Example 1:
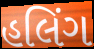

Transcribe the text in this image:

હલિંગ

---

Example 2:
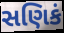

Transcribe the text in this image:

સણિકં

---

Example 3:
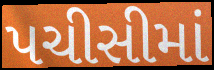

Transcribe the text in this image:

પચીસીમાં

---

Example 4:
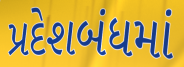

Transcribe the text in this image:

પ્રદેશબંધમાં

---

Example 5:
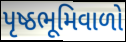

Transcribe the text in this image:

પૃષ્ઠભૂમિવાળો